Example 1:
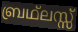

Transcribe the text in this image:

ബ്രഥ്ലസ്സ്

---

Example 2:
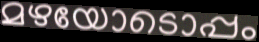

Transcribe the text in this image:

മഴയോടൊപ്പം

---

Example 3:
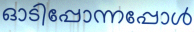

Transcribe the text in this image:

ഓടിപ്പോന്നപ്പോൾ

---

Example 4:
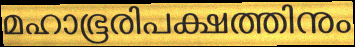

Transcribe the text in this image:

മഹാഭൂരിപക്ഷത്തിനും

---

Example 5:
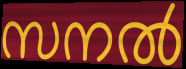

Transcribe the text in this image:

സനൽ